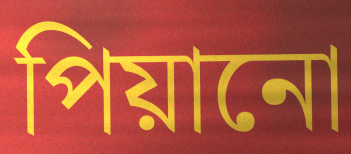
পিয়ানো